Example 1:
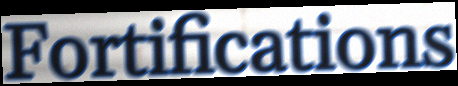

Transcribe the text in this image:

Fortifications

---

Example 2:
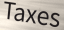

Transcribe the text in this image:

Taxes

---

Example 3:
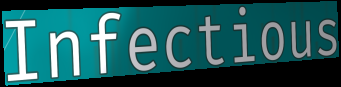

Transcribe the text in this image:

Infectious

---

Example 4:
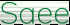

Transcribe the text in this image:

Saee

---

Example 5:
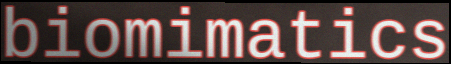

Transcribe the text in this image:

biomimatics